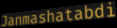
Janmashatabdi